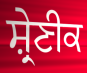
ਸ਼੍ਰੇਣੀਕ